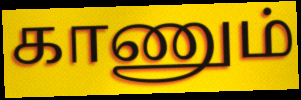
காணும்